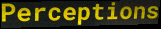
Perceptions